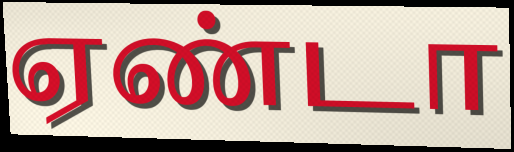
ஏண்டா